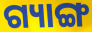
ଗ୍ୟାଙ୍ଗ